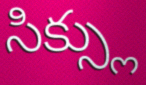
సిక్స్లు